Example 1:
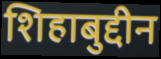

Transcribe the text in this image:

शिहाबुद्दीन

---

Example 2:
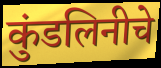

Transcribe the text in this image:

कुंडलिनीचे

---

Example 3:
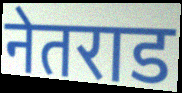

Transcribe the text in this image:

नेतराड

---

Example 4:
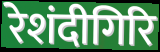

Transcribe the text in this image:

रेशंदीगिरि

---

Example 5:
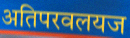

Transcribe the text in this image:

अतिपरवलयज